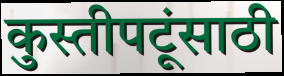
कुस्तीपटूंसाठी